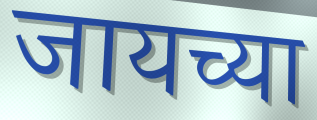
जायच्या